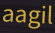
aagil